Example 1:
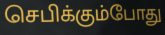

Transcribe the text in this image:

செபிக்கும்போது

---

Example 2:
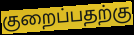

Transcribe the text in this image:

குறைப்பதற்கு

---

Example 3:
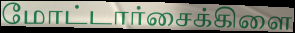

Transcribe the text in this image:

மோட்டார்சைக்கிளை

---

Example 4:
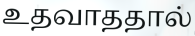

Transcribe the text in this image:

உதவாததால்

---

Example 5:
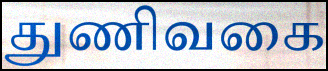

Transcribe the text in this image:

துணிவகை